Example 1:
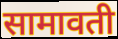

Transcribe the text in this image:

सामावती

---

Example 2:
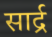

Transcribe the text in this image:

सार्द्र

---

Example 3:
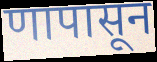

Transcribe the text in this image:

णापासून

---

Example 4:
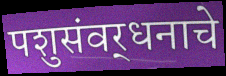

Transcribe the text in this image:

पशुसंवर्धनाचे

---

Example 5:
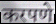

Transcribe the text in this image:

करपणे